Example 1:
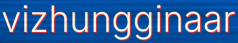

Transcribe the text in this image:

vizhungginaar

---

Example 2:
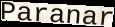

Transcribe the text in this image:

Paranar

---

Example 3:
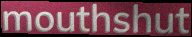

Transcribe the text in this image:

mouthshut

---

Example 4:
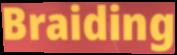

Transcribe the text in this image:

Braiding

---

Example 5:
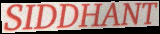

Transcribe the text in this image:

SIDDHANT